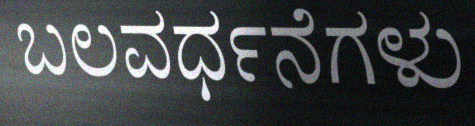
ಬಲವರ್ಧನೆಗಳು